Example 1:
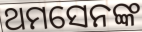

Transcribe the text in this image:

ଥମସେନଙ୍କ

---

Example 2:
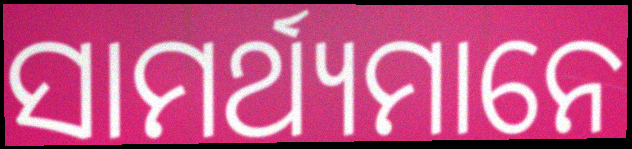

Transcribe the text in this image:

ସାମର୍ଥ୍ୟମାନେ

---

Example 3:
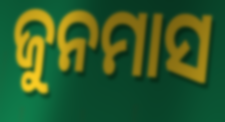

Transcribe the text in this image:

ଜୁନମାସ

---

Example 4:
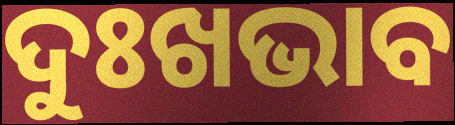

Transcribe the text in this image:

ଦୁଃଖଭାବ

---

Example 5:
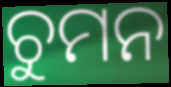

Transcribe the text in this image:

ଚୁମନ